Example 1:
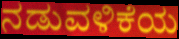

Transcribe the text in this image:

ನಡುವಳಿಕೆಯ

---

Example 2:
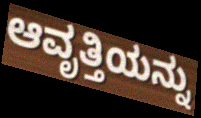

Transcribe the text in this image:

ಆವೃತ್ತಿಯನ್ನು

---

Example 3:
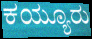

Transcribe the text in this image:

ಕಯ್ಯೂರು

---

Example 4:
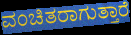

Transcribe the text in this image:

ವಂಚಿತರಾಗುತ್ತಾರೆ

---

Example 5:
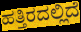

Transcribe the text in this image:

ಹತ್ತಿರದಲ್ಲಿದೆ